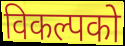
विकल्पको